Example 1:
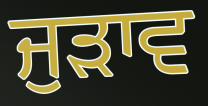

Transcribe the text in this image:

ਜੁੜਾਵ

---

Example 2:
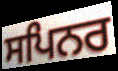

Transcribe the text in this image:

ਸਪਿਨਰ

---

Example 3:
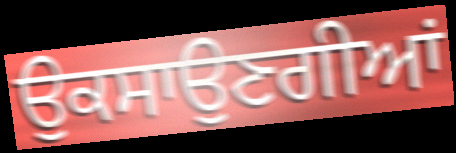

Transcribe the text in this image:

ਉਕਸਾਉਣਗੀਆਂ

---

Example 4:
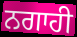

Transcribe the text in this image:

ਨਗਾਹੀ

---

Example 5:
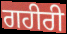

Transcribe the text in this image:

ਗਹੀਰੀ